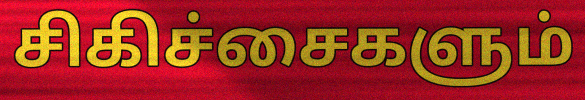
சிகிச்சைகளும்